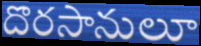
దొరసానులూ